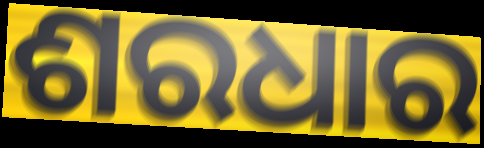
ଶରଧାର